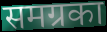
समग्रका